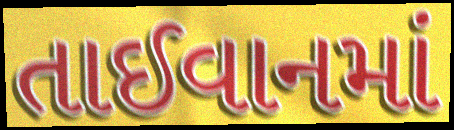
તાઈવાનમાં